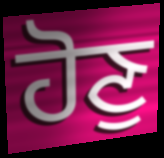
ਹੋਣੁ